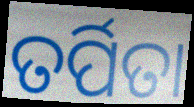
ତର୍ପିତା